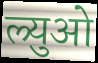
ल्युओ